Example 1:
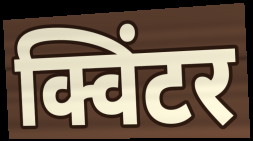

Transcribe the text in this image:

क्विंटर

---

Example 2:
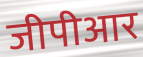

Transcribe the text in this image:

जीपीआर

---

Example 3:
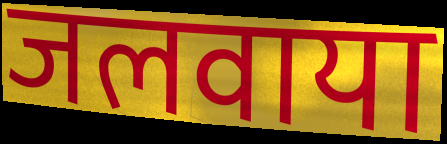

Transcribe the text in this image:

जलवाया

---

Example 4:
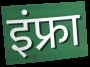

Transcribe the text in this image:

इंफ्रा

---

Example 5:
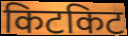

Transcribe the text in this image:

किटकिट